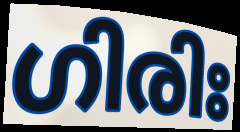
ഗിരിഃ